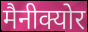
मैनीक्योर